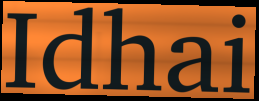
Idhai